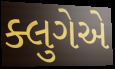
ક્લુગેએ